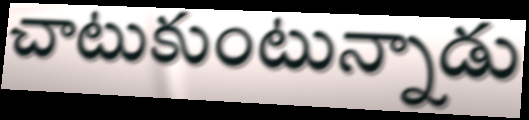
చాటుకుంటున్నాడు